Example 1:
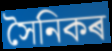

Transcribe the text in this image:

সৈনিকৰ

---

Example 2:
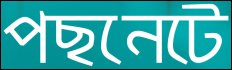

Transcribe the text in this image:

পছনেটে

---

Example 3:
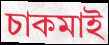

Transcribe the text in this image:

চাকমাই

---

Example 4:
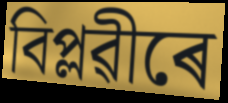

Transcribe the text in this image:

বিপ্লৱীৰে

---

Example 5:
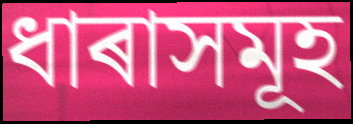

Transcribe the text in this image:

ধাৰাসমূহ